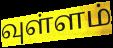
வுள்ளம்